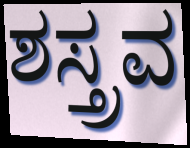
ಶಸ್ತ್ರವ